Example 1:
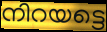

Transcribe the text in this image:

നിറയട്ടെ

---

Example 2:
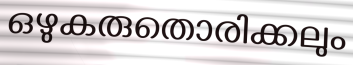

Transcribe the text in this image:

ഒഴുകരുതൊരിക്കലും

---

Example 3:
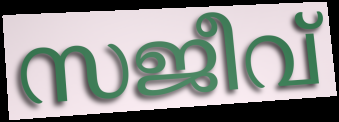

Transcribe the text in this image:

സജീവ്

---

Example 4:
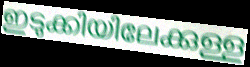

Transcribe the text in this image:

ഇടുക്കിയിലേക്കുള്ള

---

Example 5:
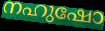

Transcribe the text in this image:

നഹുഷോ